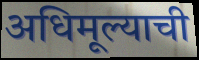
अधिमूल्याची